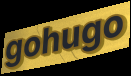
gohugo